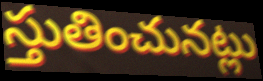
స్తుతించునట్లు